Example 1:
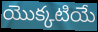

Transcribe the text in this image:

యొక్కటియే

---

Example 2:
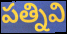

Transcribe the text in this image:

పత్నివి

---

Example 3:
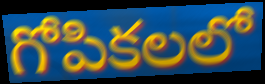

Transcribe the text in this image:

గోపికలలో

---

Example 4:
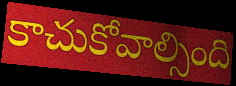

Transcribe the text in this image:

కాచుకోవాల్సింది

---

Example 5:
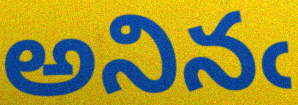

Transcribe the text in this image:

అనినఁ